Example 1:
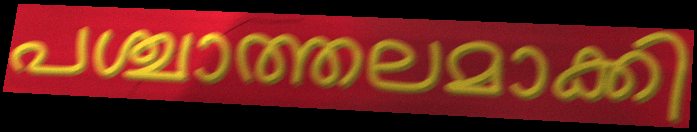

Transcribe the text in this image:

പശ്ചാത്തലമാക്കി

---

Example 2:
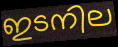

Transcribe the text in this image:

ഇടനില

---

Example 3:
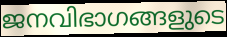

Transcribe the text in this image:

ജനവിഭാഗങ്ങളുടെ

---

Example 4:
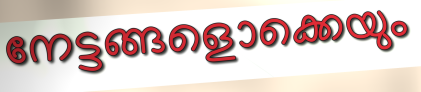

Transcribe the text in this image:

നേട്ടങ്ങളൊക്കെയും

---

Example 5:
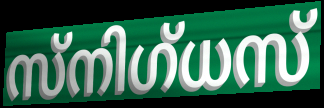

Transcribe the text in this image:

സ്നിഗ്ധസ്